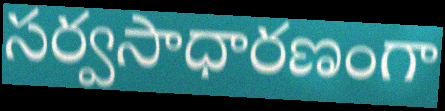
సర్వసాధారణంగా